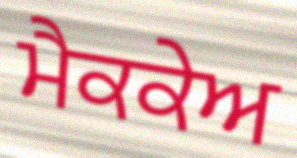
ਮੈਕਕੇਅ